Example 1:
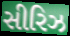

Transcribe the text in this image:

સીરિઝ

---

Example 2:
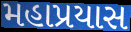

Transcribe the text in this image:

મહાપ્રયાસ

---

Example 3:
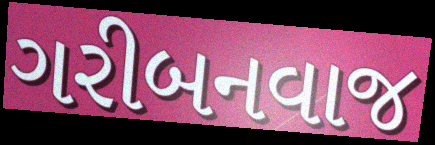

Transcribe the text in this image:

ગરીબનવાજ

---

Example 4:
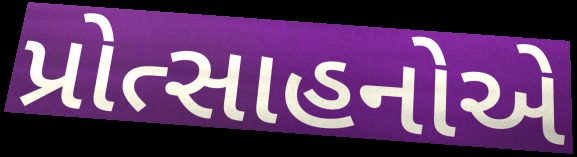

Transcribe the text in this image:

પ્રોત્સાહનોએ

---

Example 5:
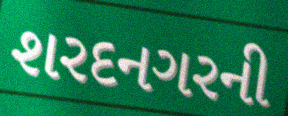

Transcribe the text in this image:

શરદનગરની